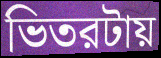
ভিতরটায়